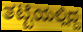
ತಟ್ಟೆಯಲ್ಲಿದ್ದ